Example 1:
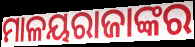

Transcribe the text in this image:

ମାଳୟରାଜାଙ୍କର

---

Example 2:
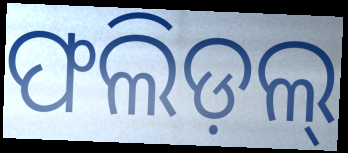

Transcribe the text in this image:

ଫଲିଡ଼ଲ୍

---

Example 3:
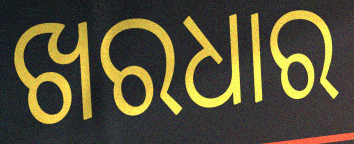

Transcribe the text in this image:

ଖରଧାର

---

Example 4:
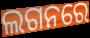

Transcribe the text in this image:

ଲଗନରେ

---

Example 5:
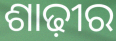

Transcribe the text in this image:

ଶାଢ଼ୀର